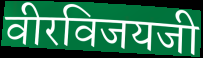
वीरविजयजी